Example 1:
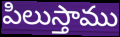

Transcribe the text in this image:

పిలుస్తాము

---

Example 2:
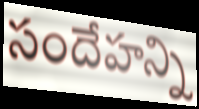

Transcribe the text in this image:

సందేహన్ని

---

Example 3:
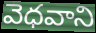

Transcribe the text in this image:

వెధవాని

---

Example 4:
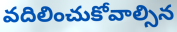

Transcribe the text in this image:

వదిలించుకోవాల్సిన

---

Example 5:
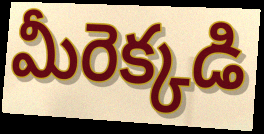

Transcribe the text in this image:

మీరెక్కడి